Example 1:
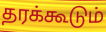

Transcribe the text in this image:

தரக்கூடும்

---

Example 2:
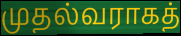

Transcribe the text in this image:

முதல்வராகத்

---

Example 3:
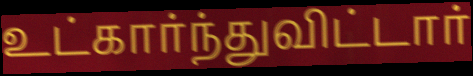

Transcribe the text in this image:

உட்கார்ந்துவிட்டார்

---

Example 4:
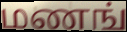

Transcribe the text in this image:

மணங்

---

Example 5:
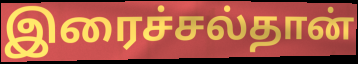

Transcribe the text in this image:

இரைச்சல்தான்